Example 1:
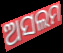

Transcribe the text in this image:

ଅସଲମ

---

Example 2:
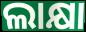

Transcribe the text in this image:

ଲାକ୍ଷା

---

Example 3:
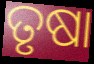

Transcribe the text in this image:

ତୃଷା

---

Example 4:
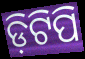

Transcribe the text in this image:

ଡ଼ିଟିପି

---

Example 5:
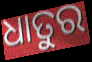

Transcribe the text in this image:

ଧାତୁର